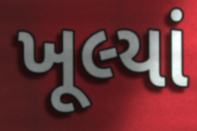
ખૂલ્યાં